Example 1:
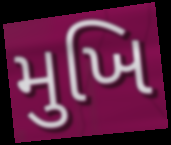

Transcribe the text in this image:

મુખિ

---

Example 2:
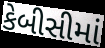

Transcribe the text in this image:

કેબીસીમાં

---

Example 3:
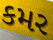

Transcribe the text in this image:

કમર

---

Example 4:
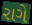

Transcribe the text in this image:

રાગે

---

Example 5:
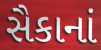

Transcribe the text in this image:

સૈકાનાં